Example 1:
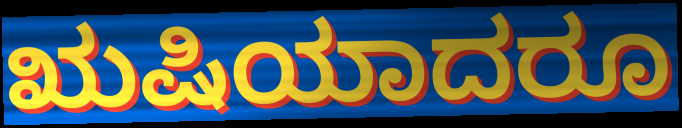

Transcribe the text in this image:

ಋಷಿಯಾದರೂ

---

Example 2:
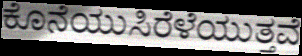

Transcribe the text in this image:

ಕೊನೆಯುಸಿರೆಳೆಯುತ್ತವೆ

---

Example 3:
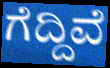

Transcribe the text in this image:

ಗೆದ್ದಿವೆ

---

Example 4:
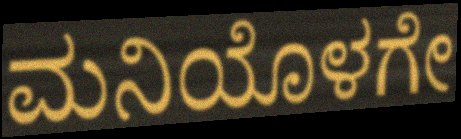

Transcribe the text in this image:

ಮನಿಯೊಳಗೇ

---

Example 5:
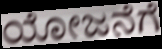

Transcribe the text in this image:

ಯೋಜನೆಗೆ